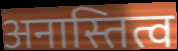
अनास्तित्व